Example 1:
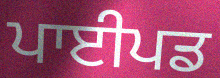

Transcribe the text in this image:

ਪਾਈਪਡ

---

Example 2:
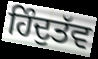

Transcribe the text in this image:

ਹਿੰਦੁਤੱਵ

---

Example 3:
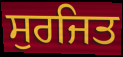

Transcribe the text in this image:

ਸੁਰਜਿਤ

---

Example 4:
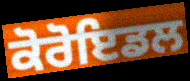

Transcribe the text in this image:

ਕੋਰੋਇਡਲ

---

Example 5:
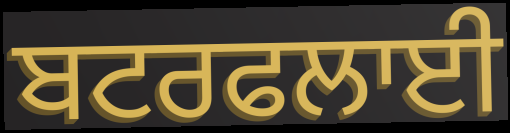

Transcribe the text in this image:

ਬਟਰਫਲਾਈ